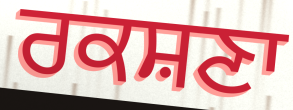
ਰਕਸ਼ਣਾ